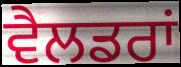
ਵੈਲਡਰਾਂ